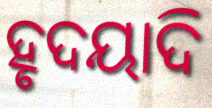
ହୃଦୟାଦି